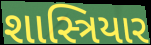
શાસ્ત્રિયાર